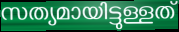
സത്യമായിട്ടുള്ളത്